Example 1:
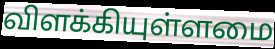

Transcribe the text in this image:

விளக்கியுள்ளமை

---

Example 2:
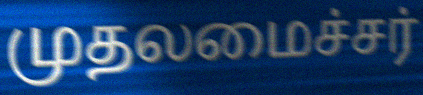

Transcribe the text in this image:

முதலமைச்சர்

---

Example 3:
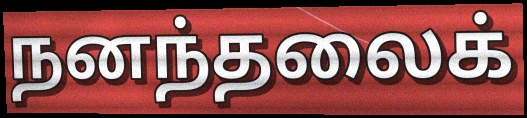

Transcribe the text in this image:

நனந்தலைக்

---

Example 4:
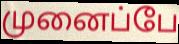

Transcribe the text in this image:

முனைப்பே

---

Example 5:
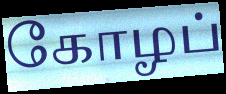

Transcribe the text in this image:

கோழப்